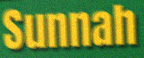
Sunnah